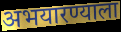
अभयारण्याला